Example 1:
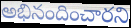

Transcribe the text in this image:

అభినందించారని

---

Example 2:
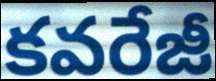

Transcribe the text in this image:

కవరేజీ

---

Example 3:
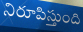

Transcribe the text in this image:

నిరూపిస్తుంది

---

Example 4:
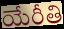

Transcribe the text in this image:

యేరీతి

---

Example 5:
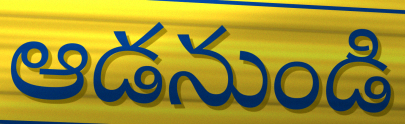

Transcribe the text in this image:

ఆడనుండి